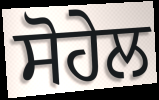
ਸੋਹੇਲ